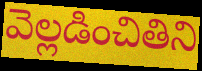
వెల్లడించితిని